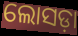
ଲୋସଡ଼ା